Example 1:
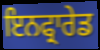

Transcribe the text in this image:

ਇਨਫ੍ਰਾਰੇਡ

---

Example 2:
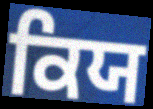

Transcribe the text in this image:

ਕਿਯ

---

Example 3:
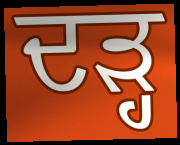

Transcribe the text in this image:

ਦੜ੍ਹ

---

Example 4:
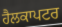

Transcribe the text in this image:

ਹੈਲਕਾਪਟਰ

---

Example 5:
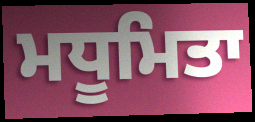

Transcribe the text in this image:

ਮਧੂਮਿਤਾ